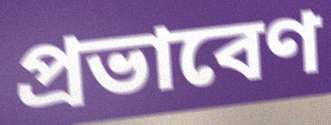
প্রভাবেণ